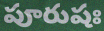
పూరుషః